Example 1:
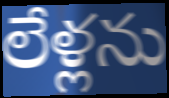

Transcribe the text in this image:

లేళ్లను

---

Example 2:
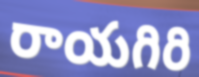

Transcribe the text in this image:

రాయగిరి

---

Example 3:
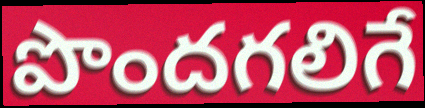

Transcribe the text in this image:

పొందగలిగే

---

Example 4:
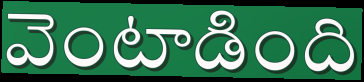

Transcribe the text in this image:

వెంటాడింది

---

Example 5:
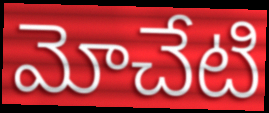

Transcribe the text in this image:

మోచేటి